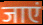
जाएं